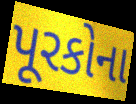
પૂરકોના